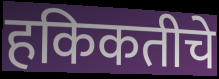
हकिकतीचे